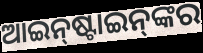
ଆଇନ୍‌ଷ୍ଟାଇନ୍‌ଙ୍କର